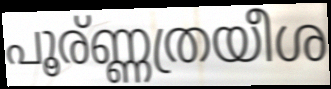
പൂര്ണ്ണത്രയീശ